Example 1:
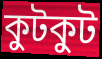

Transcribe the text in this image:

কুটকুট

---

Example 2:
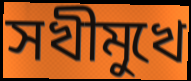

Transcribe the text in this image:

সখীমুখে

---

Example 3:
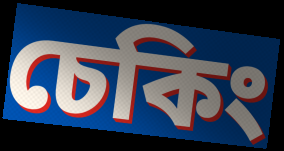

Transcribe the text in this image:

চেকিং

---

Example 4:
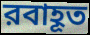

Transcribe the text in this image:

রবাহূত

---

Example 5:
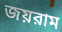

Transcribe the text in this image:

জয়রাম